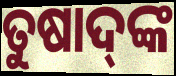
ତୁଷାଦ୍‌ଙ୍କ